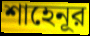
শাহেনূর